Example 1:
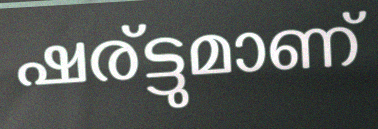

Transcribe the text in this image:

ഷര്ട്ടുമാണ്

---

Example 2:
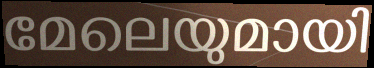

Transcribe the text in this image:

മേലെയുമായി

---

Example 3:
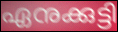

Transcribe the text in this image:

ഏനുക്കുട്ടി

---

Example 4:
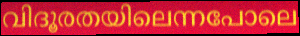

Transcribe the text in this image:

വിദൂരതയിലെന്നപോലെ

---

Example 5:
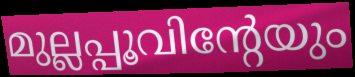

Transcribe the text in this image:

മുല്ലപ്പൂവിന്റേയും